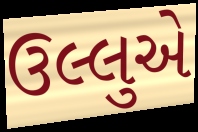
ઉલ્લુએ